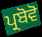
ਪ੍ਰਬੋਵੋ